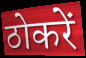
ठोकरें